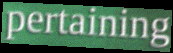
pertaining